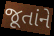
જૂતાંને